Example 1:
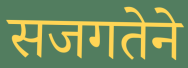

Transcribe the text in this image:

सजगतेने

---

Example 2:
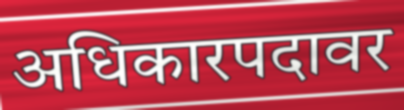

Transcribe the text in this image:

अधिकारपदावर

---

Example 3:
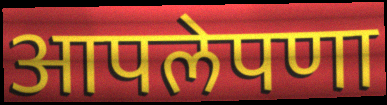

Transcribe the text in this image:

आपलेपणा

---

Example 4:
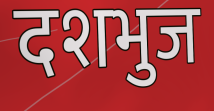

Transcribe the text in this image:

दशभुज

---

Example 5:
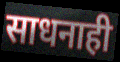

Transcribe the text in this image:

साधनाही